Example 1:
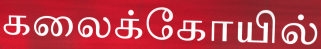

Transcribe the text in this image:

கலைக்கோயில்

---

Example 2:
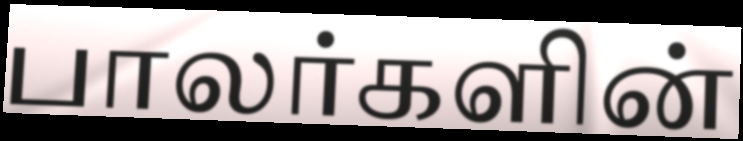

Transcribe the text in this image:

பாலர்களின்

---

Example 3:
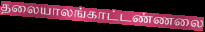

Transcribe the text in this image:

தலையாலங்காட்டண்ணலை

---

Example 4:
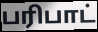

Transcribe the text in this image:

பரிபாட்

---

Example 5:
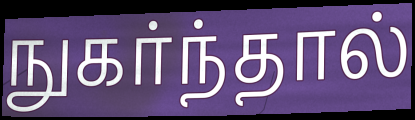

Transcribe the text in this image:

நுகர்ந்தால்